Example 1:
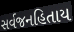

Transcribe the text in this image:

સર્વજનહિતાય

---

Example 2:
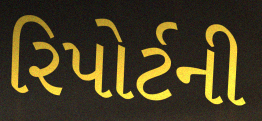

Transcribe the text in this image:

રિપોર્ટની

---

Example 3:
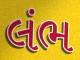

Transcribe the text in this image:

લંભ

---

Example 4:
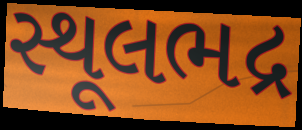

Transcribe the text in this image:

સ્થૂલભદ્ર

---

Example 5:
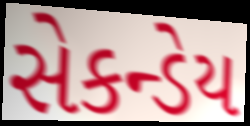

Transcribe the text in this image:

સેકન્ડેય